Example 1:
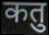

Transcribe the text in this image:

कतु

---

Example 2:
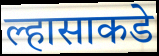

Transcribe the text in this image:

ल्हासाकडे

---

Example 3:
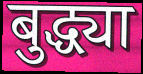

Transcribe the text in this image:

बुद्ध्या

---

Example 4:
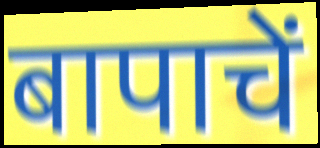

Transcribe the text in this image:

बापाचें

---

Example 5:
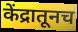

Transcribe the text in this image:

केंद्रातूनच